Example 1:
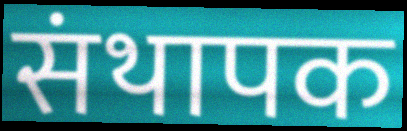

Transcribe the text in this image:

संथापक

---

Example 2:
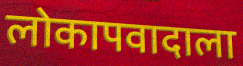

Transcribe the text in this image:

लोकापवादाला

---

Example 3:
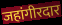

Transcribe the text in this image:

जहांगीरदार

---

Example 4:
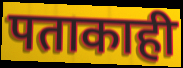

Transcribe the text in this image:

पताकाही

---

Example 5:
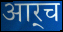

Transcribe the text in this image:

आर्च